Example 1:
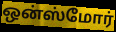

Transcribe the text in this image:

ஒன்ஸ்மோர்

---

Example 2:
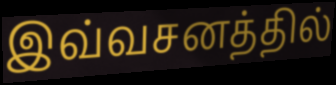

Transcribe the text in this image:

இவ்வசனத்தில்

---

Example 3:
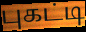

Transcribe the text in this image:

புகட்டி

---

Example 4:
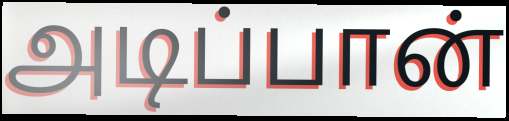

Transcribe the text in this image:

அடிப்பான்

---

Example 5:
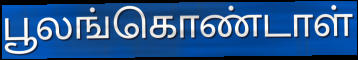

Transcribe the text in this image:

பூலங்கொண்டாள்